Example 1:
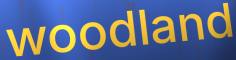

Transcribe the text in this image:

woodland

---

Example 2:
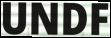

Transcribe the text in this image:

UNDF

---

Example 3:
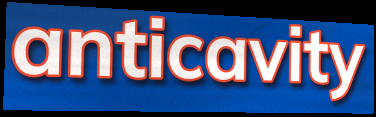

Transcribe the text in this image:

anticavity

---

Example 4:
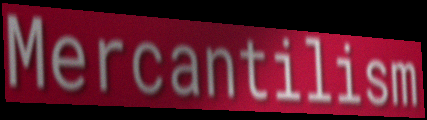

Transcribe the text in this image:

Mercantilism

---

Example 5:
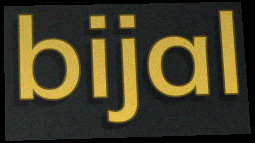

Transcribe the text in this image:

bijal